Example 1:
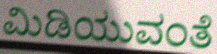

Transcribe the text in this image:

ಮಿಡಿಯುವಂತೆ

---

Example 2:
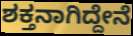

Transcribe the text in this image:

ಶಕ್ತನಾಗಿದ್ದೇನೆ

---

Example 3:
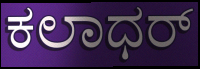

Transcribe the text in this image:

ಕಲಾಧರ್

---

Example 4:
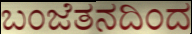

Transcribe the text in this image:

ಬಂಜೆತನದಿಂದ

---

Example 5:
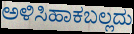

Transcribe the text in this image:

ಅಳಿಸಿಹಾಕಬಲ್ಲದು